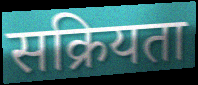
सक्रियता